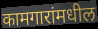
कामगारांमधील